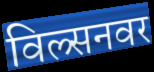
विल्सनवर